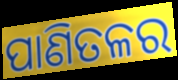
ପାଣିତଳର